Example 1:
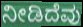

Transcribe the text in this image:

ನೀಡಿದೆವು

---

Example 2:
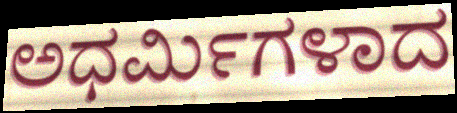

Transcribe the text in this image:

ಅಧರ್ಮಿಗಳಾದ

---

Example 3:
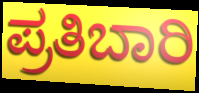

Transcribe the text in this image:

ಪ್ರತಿಬಾರಿ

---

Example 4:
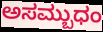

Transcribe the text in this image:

ಅಸಮ್ಬುಧಂ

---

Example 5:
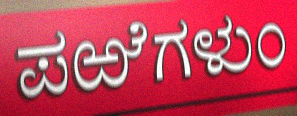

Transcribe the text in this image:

ಪಱೆಗಳುಂ